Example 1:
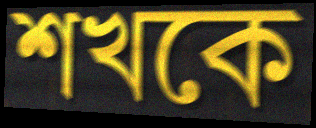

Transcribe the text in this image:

শখকে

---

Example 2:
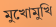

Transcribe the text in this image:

মুখোমুখি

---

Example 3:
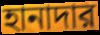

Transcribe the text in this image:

হানাদার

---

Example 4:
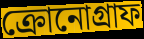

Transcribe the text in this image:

ক্রোনোগ্রাফ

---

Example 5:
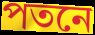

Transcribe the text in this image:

পতনে